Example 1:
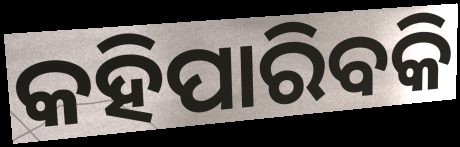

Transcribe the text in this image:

କହିପାରିବକି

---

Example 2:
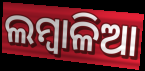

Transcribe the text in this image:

ଲମ୍ବାଳିଆ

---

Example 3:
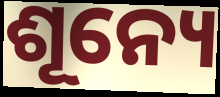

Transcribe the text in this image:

ଶୂନ୍ୟେ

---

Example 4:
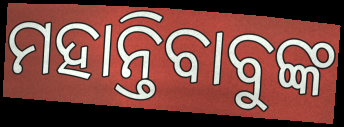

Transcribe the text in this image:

ମହାନ୍ତିବାବୁଙ୍କ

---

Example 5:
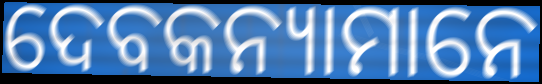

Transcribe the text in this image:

ଦେବକନ୍ୟାମାନେ